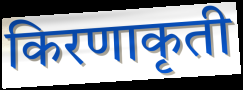
किरणाकृती